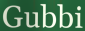
Gubbi